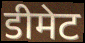
डीमेट